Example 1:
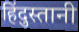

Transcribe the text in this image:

हिंदुस्तानी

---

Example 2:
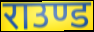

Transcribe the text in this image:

राउण्ड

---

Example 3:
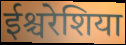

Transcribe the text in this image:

ईश्चरेशिया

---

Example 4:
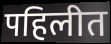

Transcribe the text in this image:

पहिलीत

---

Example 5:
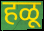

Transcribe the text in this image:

हळू